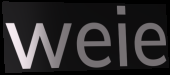
weie